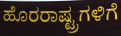
ಹೊರರಾಷ್ಟ್ರಗಳಿಗೆ